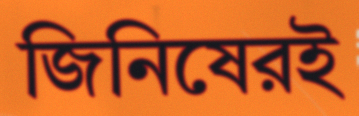
জিনিষেরই